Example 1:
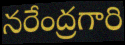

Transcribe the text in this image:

నరేంద్రగారి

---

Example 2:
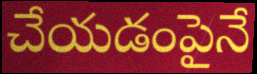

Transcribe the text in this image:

చేయడంపైనే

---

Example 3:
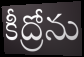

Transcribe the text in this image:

కీద్రోను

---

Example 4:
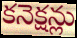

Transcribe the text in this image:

కనెక్షన్లు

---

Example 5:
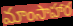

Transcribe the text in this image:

మాంసాహార